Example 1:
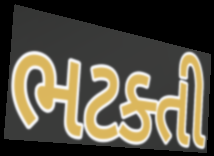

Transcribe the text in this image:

ભટક્તી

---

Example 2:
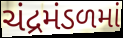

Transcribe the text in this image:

ચંદ્રમંડળમાં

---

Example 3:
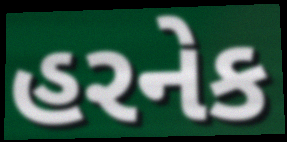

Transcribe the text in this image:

હરનેક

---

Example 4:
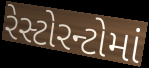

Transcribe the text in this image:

રેસ્ટોરન્ટોમાં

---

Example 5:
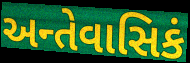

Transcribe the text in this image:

અન્તેવાસિકં